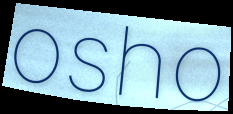
osho